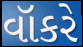
વૉકરે